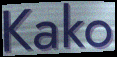
Kako